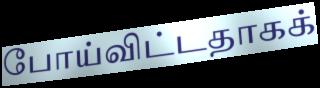
போய்விட்டதாகக்